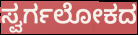
ಸ್ವರ್ಗಲೋಕದ